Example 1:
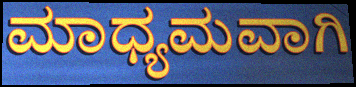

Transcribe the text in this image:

ಮಾಧ್ಯಮವಾಗಿ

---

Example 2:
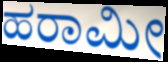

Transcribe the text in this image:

ಹರಾಮೀ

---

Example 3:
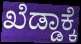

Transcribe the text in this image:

ಖೆಡ್ಡಾಕ್ಕೆ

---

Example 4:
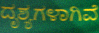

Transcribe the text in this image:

ದೃಶ್ಯಗಳಾಗಿವೆ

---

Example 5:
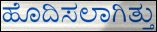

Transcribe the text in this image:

ಹೊದಿಸಲಾಗಿತ್ತು